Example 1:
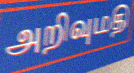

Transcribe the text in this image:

அறிவுமதி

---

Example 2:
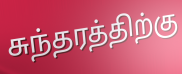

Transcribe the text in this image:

சுந்தரத்திற்கு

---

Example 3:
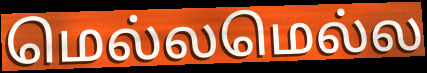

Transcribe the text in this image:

மெல்லமெல்ல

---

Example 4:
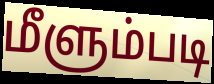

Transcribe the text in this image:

மீளும்படி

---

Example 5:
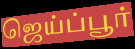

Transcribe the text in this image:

ஜெய்ப்பூர்